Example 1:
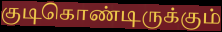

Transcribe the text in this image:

குடிகொண்டிருக்கும்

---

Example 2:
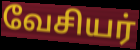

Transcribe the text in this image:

வேசியர்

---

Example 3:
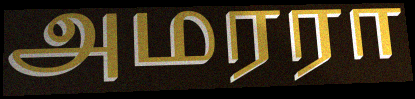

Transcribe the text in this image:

அமரரா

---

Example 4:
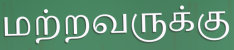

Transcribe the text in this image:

மற்றவருக்கு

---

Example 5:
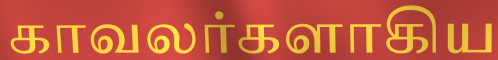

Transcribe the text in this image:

காவலர்களாகிய